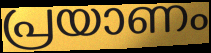
പ്രയാണം